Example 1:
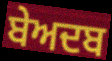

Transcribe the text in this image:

ਬੇਅਦਬ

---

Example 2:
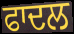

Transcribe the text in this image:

ਫਾਦਲ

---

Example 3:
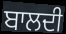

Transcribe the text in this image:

ਬਾਲਦੀ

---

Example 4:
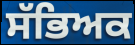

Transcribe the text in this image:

ਸੱਭਿਅਕ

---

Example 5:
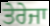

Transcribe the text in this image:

ਤੇਰੇਜਾ